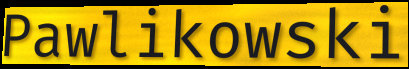
Pawlikowski